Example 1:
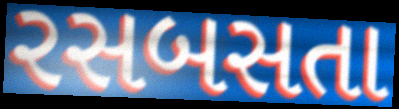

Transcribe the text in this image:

રસબસતા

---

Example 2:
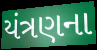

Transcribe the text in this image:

યંત્રણના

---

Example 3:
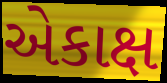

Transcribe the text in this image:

એકાક્ષ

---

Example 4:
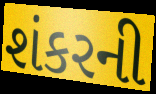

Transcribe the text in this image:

શંકરની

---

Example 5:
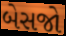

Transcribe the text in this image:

બેસજો